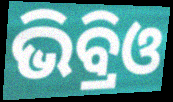
ଭିବ୍ରିଓ